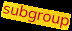
subgroup